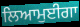
ਲਿਆਮੁਈਗਾ